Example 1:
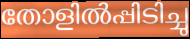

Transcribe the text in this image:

തോളിൽപ്പിടിച്ചു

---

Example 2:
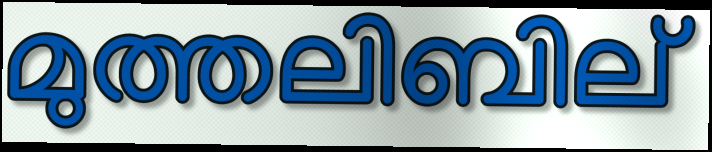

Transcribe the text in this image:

മുത്തലിബില്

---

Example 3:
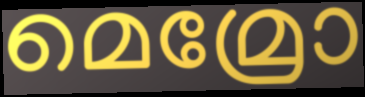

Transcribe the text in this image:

മെമ്രോ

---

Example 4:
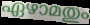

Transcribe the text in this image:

ഏഴാമതും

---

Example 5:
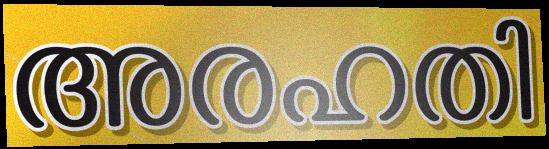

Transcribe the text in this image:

അരഹതി